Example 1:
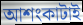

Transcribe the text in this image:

আশংকাটাই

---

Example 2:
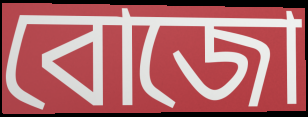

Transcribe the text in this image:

বোজো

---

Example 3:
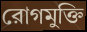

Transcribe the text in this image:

রোগমুক্তি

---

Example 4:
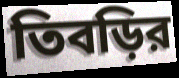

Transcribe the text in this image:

তিবড়ির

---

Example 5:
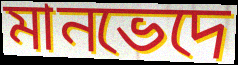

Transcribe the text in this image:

মানভেদে